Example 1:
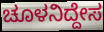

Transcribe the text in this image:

ಚೂಳನಿದ್ದೇಸ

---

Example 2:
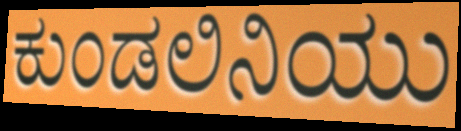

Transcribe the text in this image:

ಕುಂಡಲಿನಿಯು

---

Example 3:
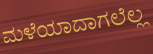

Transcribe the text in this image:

ಮಳೆಯಾದಾಗಲೆಲ್ಲ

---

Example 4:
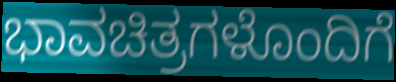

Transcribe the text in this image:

ಭಾವಚಿತ್ರಗಳೊಂದಿಗೆ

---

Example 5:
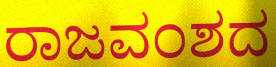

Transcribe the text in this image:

ರಾಜವಂಶದ